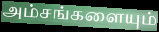
அம்சங்களையும்